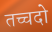
तच्चदो